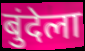
बुंदेला